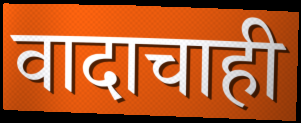
वादाचाही